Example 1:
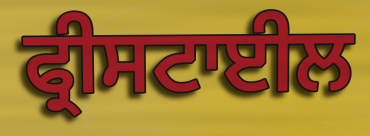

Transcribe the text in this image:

ਫ੍ਰੀਸਟਾਈਲ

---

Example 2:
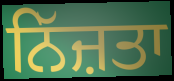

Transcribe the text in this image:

ਨਿੱਜ਼ਤਾ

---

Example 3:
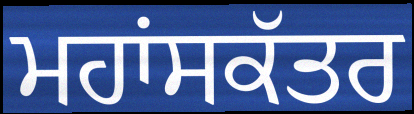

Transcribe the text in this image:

ਮਹਾਂਸਕੱਤਰ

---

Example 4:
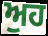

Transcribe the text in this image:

ਅੁਹ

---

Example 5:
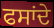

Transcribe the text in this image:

ਫਸਾਂਦੇ